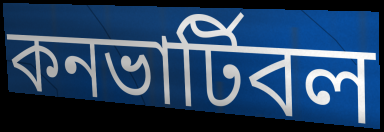
কনভার্টিবল